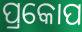
ପ୍ରକୋପ